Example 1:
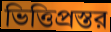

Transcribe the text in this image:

ভিত্তিপ্রস্তর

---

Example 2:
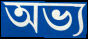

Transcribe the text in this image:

অভ্য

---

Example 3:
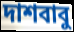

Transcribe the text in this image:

দাশবাবু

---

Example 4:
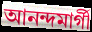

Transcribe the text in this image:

আনন্দমার্গী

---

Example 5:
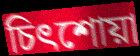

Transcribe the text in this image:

চিৎশোয়া